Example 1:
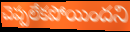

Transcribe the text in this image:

చెప్పలేకపోయిందని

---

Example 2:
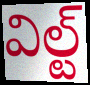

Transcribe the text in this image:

విల్ట్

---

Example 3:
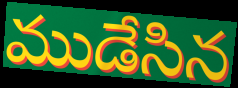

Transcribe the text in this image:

ముడేసిన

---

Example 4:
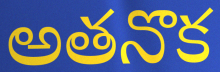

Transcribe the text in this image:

అతనొక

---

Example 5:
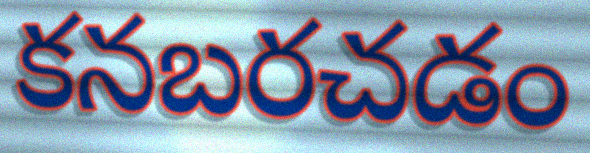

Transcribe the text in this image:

కనబరచడం